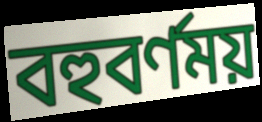
বহুবর্ণময়